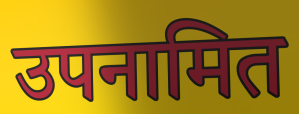
उपनामित